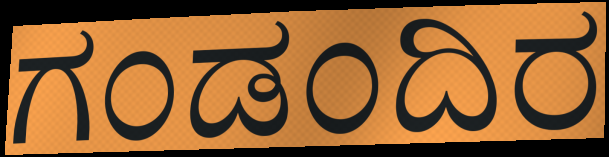
ಗಂಡಂದಿರ